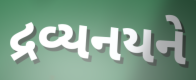
દ્રવ્યનયને